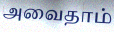
அவைதாம்